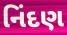
નિંદણ